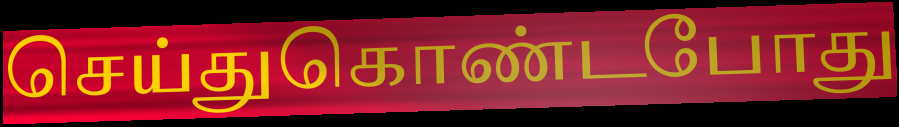
செய்துகொண்டபோது